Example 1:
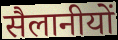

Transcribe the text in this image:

सैलानीयों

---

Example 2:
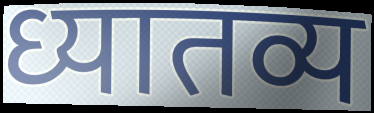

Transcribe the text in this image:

ध्यातव्य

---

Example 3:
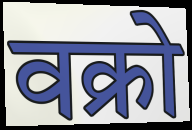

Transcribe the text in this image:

वक्रो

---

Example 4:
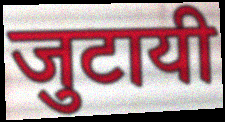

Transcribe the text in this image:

जुटायी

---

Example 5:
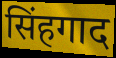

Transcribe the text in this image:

सिंहगाद